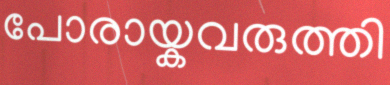
പോരായ്കവരുത്തി